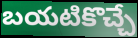
బయటికొచ్చే